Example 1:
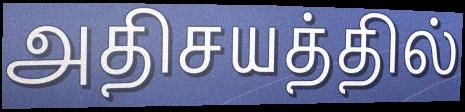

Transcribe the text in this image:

அதிசயத்தில்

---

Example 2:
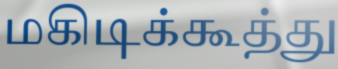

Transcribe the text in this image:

மகிடிக்கூத்து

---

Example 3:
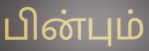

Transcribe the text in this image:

பின்பும்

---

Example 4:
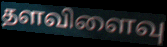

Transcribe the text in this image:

தளவிளைவு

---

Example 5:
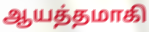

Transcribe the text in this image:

ஆயத்தமாகி